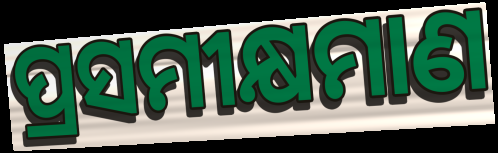
ପ୍ରସମୀକ୍ଷମାଣ